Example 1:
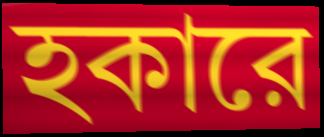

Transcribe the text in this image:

হকারে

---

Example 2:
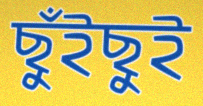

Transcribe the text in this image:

ছুঁইছুই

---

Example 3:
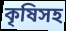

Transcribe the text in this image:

কৃষিসহ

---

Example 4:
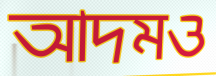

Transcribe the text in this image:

আদমও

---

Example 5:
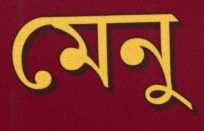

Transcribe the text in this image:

মেনু